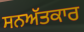
ਸਨਅੱਤਕਾਰ